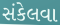
સંકેલવા